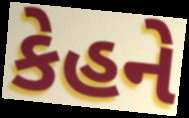
કેહને